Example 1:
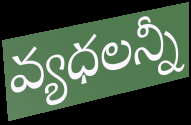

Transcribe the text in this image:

వ్యధలన్నీ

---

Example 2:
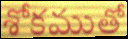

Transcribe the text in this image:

శోకముతో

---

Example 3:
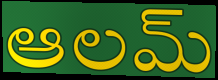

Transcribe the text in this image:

ఆలమ్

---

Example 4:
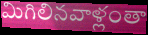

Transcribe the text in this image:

మిగిలినవాళ్లంతా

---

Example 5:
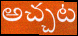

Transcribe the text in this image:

అచ్చట